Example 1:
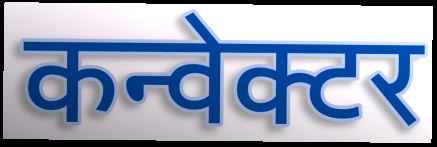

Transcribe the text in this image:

कन्वेक्टर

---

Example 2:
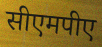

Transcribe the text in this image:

सीएमपीए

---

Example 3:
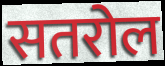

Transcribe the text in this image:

सतरोल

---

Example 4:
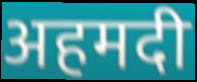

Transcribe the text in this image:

अहमदी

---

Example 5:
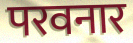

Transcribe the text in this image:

परवनार